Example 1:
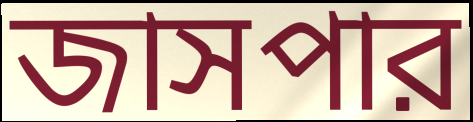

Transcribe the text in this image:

জাসপার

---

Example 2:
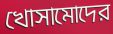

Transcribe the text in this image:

খোসামোদের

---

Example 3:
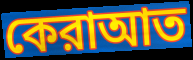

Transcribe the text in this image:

কেরাআত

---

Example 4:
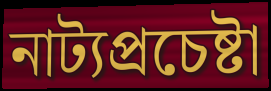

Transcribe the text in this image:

নাট্যপ্রচেষ্টা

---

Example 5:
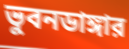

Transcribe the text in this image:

ভুবনডাঙ্গার